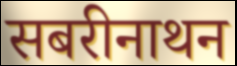
सबरीनाथन